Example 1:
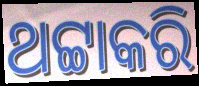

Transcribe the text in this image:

ଥଟ୍ଟାକରି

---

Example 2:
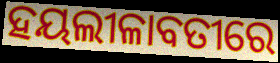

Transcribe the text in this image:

ହୟଲୀଳାବତୀରେ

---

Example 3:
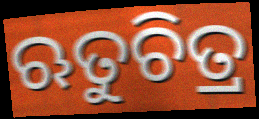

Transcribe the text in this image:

ଋତୁଚିତ୍ର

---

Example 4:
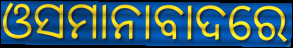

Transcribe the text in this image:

ଓସମାନାବାଦରେ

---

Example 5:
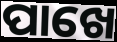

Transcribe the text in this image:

ପାଖେ